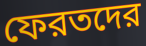
ফেরতদের